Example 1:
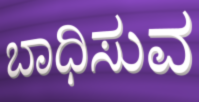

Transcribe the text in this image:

ಬಾಧಿಸುವ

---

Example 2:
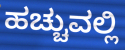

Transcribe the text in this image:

ಹಚ್ಚುವಲ್ಲಿ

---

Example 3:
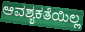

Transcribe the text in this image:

ಆವಶ್ಯಕತೆಯಿಲ್ಲ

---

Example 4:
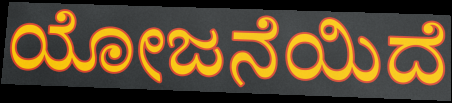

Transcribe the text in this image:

ಯೋಜನೆಯಿದೆ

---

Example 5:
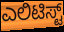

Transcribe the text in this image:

ಎಲಿಟಿಸ್ಟ್